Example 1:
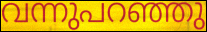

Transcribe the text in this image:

വന്നുപറഞ്ഞു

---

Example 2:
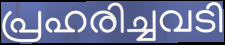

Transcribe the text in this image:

പ്രഹരിച്ചവടി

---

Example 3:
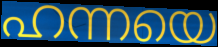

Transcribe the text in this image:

ഹന്നയെ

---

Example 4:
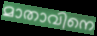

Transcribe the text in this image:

മാതാവിനെ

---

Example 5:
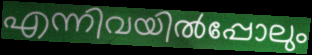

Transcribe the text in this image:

എന്നിവയിൽപ്പോലും